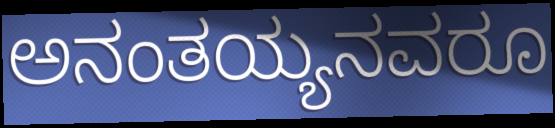
ಅನಂತಯ್ಯನವರೂ